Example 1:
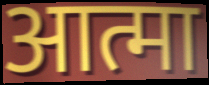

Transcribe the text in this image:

आत्मा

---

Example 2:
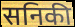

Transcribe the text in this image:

सनिकी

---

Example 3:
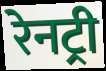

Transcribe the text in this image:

रेनट्री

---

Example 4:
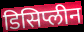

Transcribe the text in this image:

डिसिप्लीन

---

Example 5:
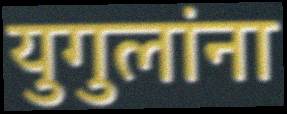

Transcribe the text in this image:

युगुलांना